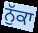
ਨੁੱਕਾ